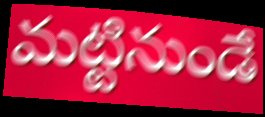
మట్టినుండే